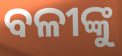
ବଳୀଙ୍କୁ